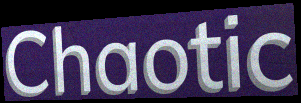
Chaotic